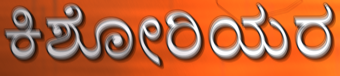
ಕಿಶೋರಿಯರ